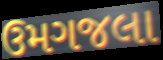
ઉમગજલા